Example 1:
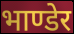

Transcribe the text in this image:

भाण्डेर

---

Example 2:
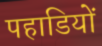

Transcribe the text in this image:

पहाडियों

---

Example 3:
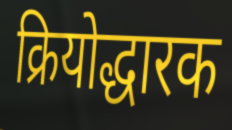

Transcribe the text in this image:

क्रियोद्धारक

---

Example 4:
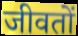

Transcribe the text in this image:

जीवतों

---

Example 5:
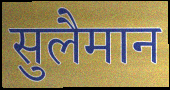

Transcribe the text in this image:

सुलैमान